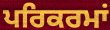
ਪਰਿਕਰਮਾਂ